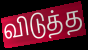
விடுத்த